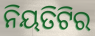
ନିୟତିଟିର